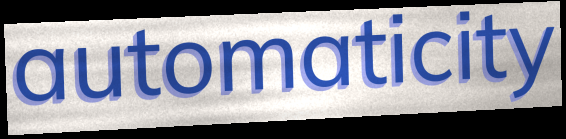
automaticity